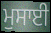
ਮੁਸਾਈ